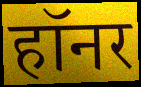
हॉनर